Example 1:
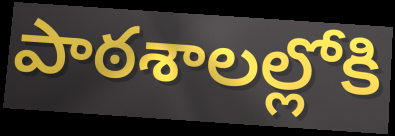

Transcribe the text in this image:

పాఠశాలల్లోకి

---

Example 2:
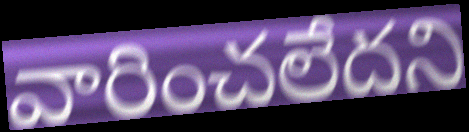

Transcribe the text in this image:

వారించలేదని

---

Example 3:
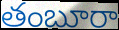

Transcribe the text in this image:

తంబూరా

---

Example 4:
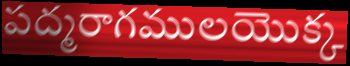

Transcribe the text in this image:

పద్మరాగములయొక్క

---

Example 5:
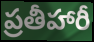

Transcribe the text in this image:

ప్రతీహారీ